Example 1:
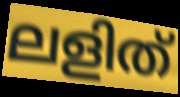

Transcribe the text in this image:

ലളിത്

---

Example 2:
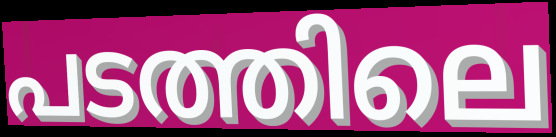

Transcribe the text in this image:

പടത്തിലെ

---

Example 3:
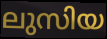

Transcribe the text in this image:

ലുസിയ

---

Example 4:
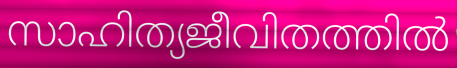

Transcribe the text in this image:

സാഹിത്യജീവിതത്തിൽ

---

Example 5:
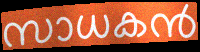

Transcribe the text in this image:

സാധകൻ